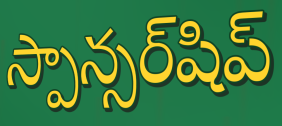
స్పాన్సర్‌షిప్